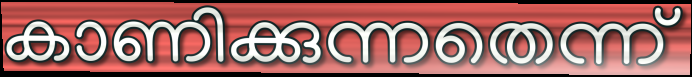
കാണിക്കുന്നതെന്ന്